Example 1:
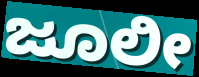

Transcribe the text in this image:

ಜೂಲೀ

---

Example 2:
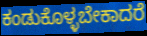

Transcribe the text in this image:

ಕಂಡುಕೊಳ್ಳಬೇಕಾದರೆ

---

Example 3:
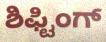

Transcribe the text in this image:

ಶಿಫ್ಟಿಂಗ್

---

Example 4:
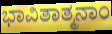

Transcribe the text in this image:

ಭಾವಿತಾತ್ಮನಾಂ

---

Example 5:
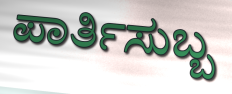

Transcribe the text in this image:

ಪಾರ್ತಿಸುಬ್ಬ